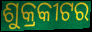
ଶୁକ୍ରକୀଟର